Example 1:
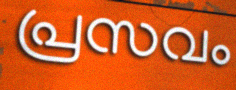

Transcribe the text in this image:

പ്രസവം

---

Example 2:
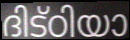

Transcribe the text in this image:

ദിട്ഠിയാ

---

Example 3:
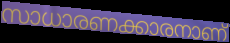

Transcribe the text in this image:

സാധാരണക്കാരനാണ്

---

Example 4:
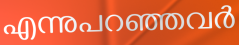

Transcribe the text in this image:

എന്നുപറഞ്ഞവർ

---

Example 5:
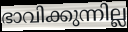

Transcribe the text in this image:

ഭാവിക്കുന്നില്ല